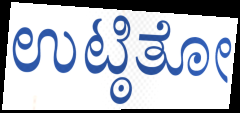
ಉಟ್ಠಿತೋ